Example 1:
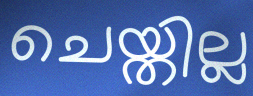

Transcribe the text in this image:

ചെയ്തില്ല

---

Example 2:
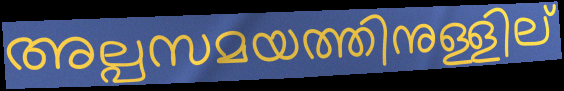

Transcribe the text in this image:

അല്പസമയത്തിനുള്ളില്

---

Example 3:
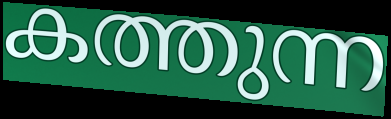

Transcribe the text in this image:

കത്തുന്ന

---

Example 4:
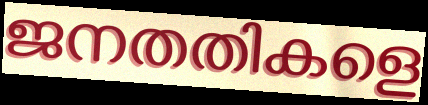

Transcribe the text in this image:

ജനതതികളെ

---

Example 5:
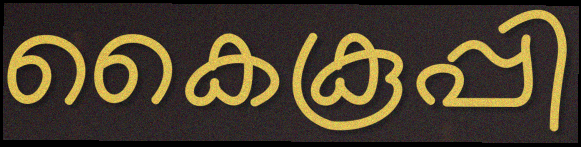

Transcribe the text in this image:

കൈകൂപ്പി